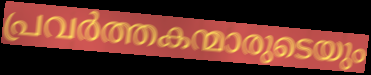
പ്രവർത്തകന്മാരുടെയും